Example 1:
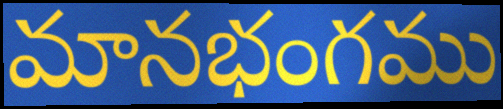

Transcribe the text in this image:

మానభంగము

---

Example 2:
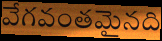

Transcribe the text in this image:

వేగవంతమైనది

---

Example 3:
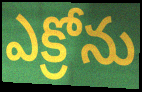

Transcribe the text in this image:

ఎక్రోను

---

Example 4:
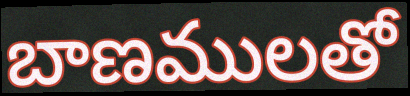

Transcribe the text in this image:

బాణములతో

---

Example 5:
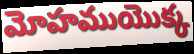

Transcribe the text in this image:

మోహముయొక్క